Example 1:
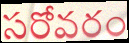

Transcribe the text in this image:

సరోవరం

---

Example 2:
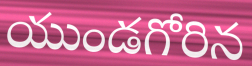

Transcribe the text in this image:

యుండగోరిన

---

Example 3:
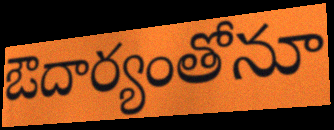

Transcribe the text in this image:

ఔదార్యంతోనూ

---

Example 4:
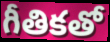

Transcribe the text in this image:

గీతికతో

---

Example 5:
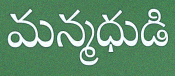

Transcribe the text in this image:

మన్మధుడి